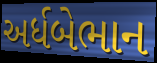
અર્ધબેભાન